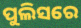
ପୁଲିସରେ